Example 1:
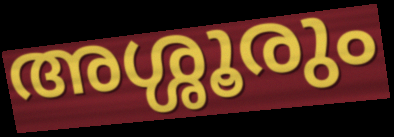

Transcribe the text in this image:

അശ്ശൂരും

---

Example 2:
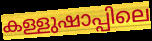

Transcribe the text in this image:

കള്ളുഷാപ്പിലെ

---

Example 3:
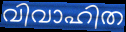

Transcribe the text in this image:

വിവാഹിത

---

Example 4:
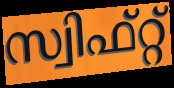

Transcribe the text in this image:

സ്വിഫ്റ്റ്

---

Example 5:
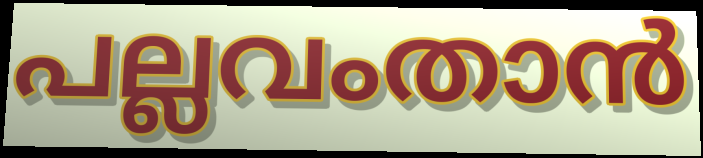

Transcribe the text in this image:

പല്ലവംതാൻ